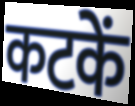
कटकें